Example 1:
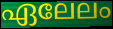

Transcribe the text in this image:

ഏലേലം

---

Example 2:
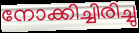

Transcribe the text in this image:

നോക്കിച്ചിരിച്ചു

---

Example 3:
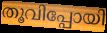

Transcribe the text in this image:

തൂവിപ്പോയി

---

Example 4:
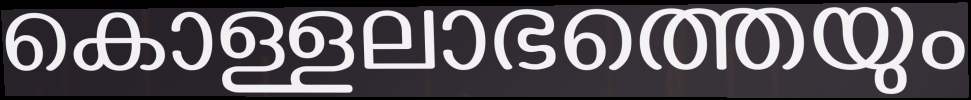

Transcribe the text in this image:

കൊള്ളലാഭത്തെയും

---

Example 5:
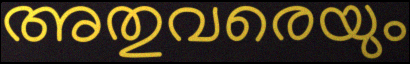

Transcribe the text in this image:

അതുവരെയും